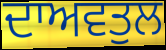
ਦਾਅਵਤੁਲ